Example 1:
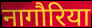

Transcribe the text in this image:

नागौरिया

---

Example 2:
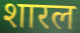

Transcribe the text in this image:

शारल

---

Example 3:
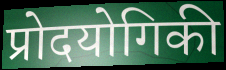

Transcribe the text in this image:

प्रोदयोगिकी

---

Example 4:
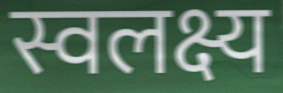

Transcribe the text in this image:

स्वलक्ष्य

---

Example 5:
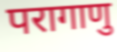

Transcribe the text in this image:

परागाणु